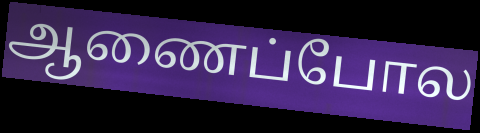
ஆணைப்போல